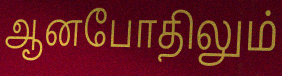
ஆனபோதிலும்